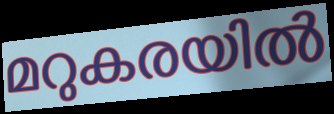
മറുകരയിൽ